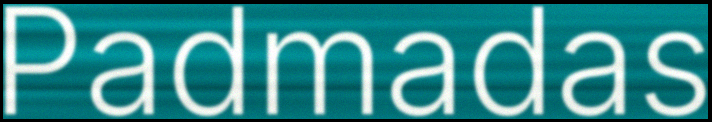
Padmadas